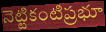
నెట్టికంటిప్రభూ